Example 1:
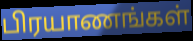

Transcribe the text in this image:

பிரயாணங்கள்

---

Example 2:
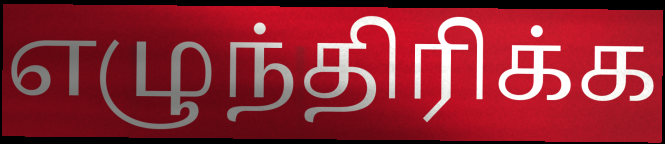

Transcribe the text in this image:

எழுந்திரிக்க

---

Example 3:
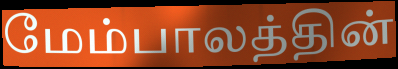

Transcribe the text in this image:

மேம்பாலத்தின்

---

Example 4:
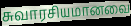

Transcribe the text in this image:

சுவாரசியமானவை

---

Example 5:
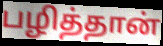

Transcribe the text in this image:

பழித்தான்